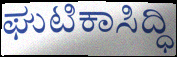
ಘುಟಿಕಾಸಿದ್ಧಿ